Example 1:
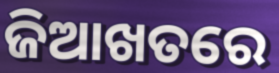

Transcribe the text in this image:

ଜିଆଖତରେ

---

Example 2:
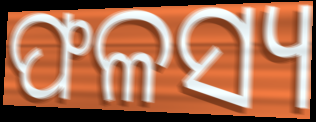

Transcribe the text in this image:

ଫଳସ୍ୟ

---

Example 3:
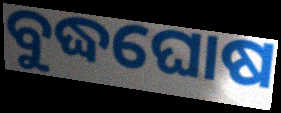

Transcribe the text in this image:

ବୁଦ୍ଧଘୋଷ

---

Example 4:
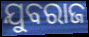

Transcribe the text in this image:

ଯୁବରାଜ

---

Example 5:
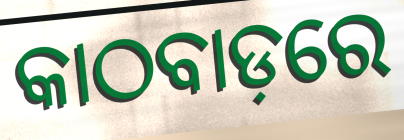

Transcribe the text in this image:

କାଠବାଡ଼ରେ